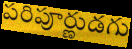
పరిపూర్ణుడగు